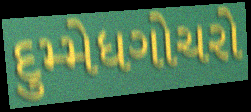
દુમ્મેધગોચરો